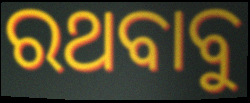
ରଥବାବୁ